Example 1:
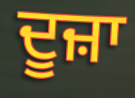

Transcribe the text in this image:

ਦੂਜ਼ਾ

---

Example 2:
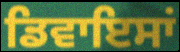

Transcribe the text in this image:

ਡਿਵਾਇਸਾਂ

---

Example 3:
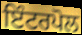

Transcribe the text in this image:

ਇੰਟਰਪੋਲ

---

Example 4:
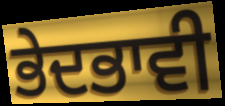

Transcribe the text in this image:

ਭੇਦਭਾਵੀ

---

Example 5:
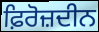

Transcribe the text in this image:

ਫ਼ਿਰੋਜ਼ਦੀਨ